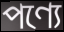
পণ্যে